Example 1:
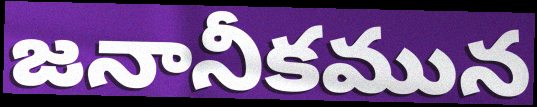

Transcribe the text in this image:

జనానీకమున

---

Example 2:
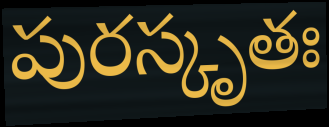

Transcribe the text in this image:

పురస్కృతః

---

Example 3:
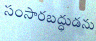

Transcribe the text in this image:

సంసారబద్ధుడను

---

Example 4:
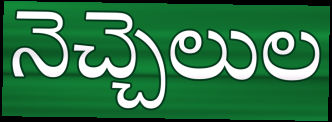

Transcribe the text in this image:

నెచ్చెలుల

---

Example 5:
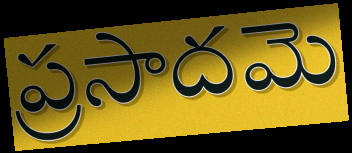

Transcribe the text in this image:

ప్రసాదమె